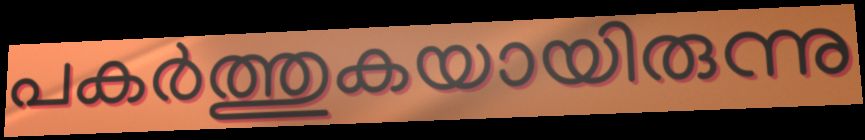
പകർത്തുകയായിരുന്നു